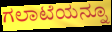
ಗಲಾಟೆಯನ್ನೂ